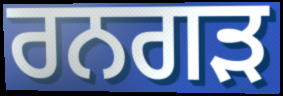
ਰਨਗੜ